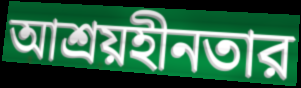
আশ্রয়হীনতার